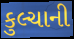
કુલ્ચાની